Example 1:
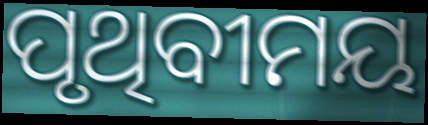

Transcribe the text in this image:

ପୃଥିବୀମୟ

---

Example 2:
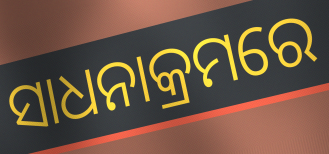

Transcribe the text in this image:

ସାଧନାକ୍ରମରେ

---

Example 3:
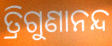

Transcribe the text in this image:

ତ୍ରିଗୁଣାନନ୍ଦ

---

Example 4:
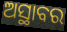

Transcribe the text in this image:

ଅସ୍ଥାବର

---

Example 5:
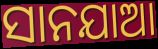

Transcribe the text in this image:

ସାନଯାଆ